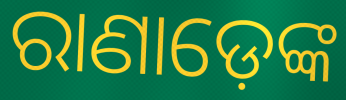
ରାଣାଡ଼େଙ୍କ